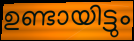
ഉണ്ടായിട്ടും